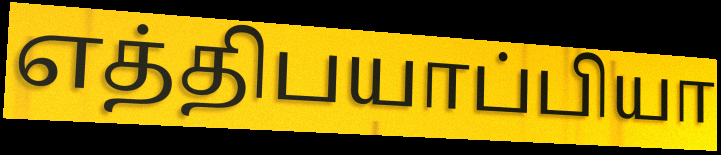
எத்திபயாப்பியா